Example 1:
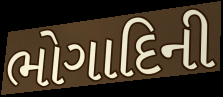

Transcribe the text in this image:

ભોગાદિની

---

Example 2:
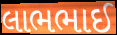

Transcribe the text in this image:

લાભભાઈ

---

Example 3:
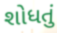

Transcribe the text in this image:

શોધતું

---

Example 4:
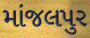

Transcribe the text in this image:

માંજલપુર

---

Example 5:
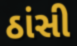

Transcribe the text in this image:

ઠાંસી